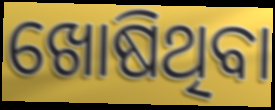
ଖୋଷିଥିବା